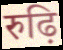
रुढ़ि